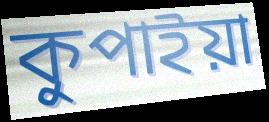
কুপাইয়া